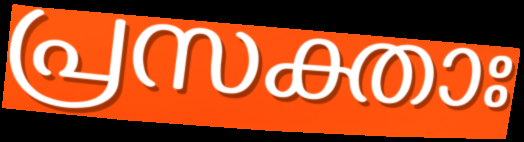
പ്രസക്താഃ